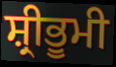
ਸ਼੍ਰੀਭੂਮੀ